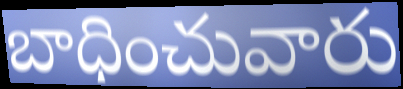
బాధించువారు